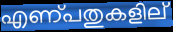
എണ്പതുകളില്